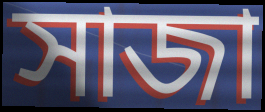
সাজা